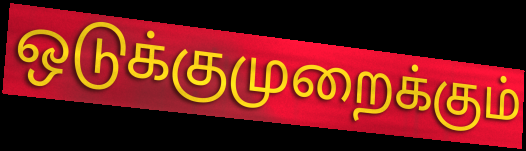
ஒடுக்குமுறைக்கும்